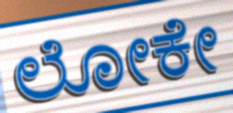
ಲೋಕೇ